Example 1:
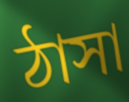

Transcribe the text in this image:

ঠাসা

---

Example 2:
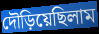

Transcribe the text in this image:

দৌড়িয়েছিলাম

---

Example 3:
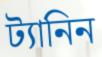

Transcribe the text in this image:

ট্যানিন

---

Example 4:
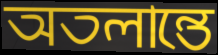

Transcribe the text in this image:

অতলান্তে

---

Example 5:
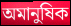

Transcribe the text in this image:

অমানুষিক